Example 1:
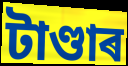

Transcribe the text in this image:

টাণ্ডাৰ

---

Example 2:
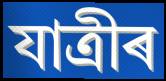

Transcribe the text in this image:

যাত্ৰীৰ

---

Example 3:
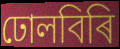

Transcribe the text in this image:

ঢোলবিৰি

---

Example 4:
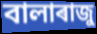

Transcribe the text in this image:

বালাৰাজু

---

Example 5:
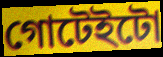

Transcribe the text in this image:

গোটেইটো